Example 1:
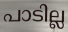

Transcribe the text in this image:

പാടില്ല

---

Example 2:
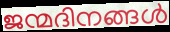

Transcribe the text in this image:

ജന്മദിനങ്ങൾ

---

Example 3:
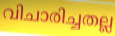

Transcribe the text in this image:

വിചാരിച്ചതല്ല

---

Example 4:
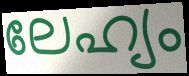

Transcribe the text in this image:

ലേഹ്യം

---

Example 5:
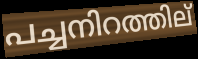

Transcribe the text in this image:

പച്ചനിറത്തില്